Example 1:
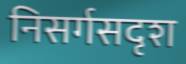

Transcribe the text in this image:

निसर्गसदृश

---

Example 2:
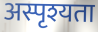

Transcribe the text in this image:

अस्पृश्यता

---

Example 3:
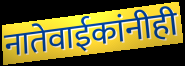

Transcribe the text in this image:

नातेवाईकांनीही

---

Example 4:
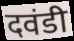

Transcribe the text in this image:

दवंडी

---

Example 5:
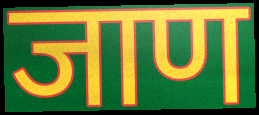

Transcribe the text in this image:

जाण